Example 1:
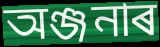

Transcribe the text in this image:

অঞ্জনাৰ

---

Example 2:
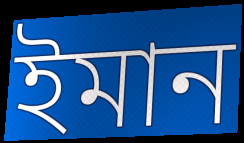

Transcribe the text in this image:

ইমান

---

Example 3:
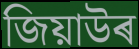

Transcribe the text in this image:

জিয়াউৰ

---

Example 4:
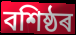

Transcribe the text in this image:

বশিষ্ঠৰ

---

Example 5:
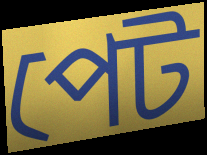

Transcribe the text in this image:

পেট